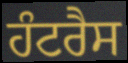
ਹੰਟਰੈਸ